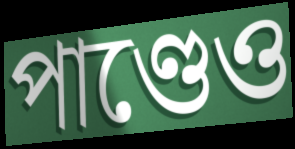
পাণ্ডেও